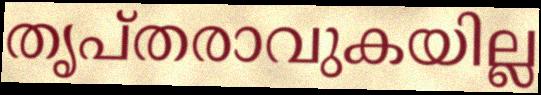
തൃപ്തരാവുകയില്ല